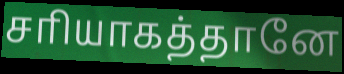
சரியாகத்தானே